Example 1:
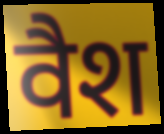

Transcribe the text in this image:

वैश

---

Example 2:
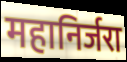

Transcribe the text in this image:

महानिर्जरा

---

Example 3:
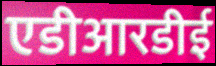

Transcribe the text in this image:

एडीआरडीई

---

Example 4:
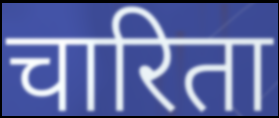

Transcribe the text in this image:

चारिता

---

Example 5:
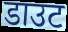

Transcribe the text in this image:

डाउट